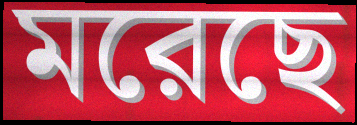
মরেছে